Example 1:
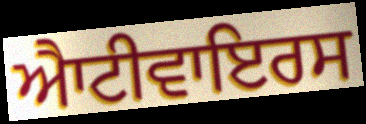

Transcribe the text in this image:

ਐਾਟੀਵਾਇਰਸ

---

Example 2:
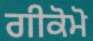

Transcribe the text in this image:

ਗੀਕੋਮੋ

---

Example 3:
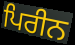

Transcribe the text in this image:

ਪਿਰੀਨ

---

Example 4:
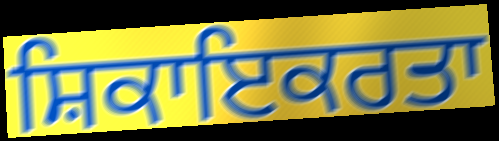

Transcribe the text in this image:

ਸ਼ਿਕਾਇਕਰਤਾ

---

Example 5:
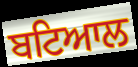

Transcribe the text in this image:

ਬਟਿਆਲ